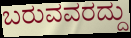
ಬರುವವರದ್ದು